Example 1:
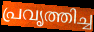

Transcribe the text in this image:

പ്രവൃത്തിച്ച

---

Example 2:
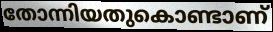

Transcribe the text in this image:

തോന്നിയതുകൊണ്ടാണ്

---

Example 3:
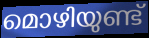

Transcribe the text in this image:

മൊഴിയുണ്ട്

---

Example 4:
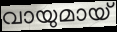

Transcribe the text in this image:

വായുമായ്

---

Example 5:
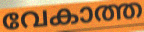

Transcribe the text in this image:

വേകാത്ത